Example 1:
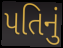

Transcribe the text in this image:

પતિનું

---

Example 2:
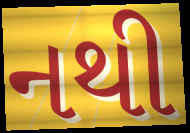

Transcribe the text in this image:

નથી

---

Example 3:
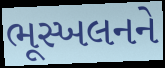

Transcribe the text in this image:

ભૂસ્ખલનને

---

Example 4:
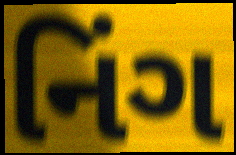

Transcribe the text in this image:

નિંગ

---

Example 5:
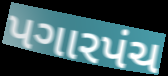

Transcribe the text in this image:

પગારપંચ